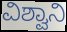
ವಿಶ್ವಾನಿ